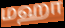
மஹா